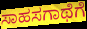
ಸಾಹಸಗಾಥೆಗೆ